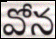
వోన